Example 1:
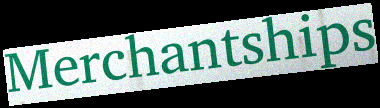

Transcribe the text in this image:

Merchantships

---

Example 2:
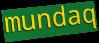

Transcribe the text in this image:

mundaq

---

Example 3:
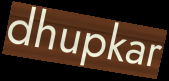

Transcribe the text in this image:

dhupkar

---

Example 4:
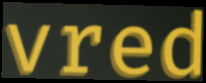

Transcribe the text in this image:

vred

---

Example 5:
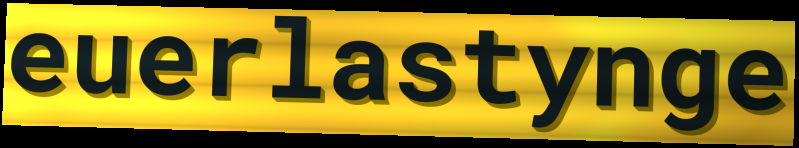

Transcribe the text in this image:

euerlastynge